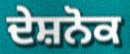
ਦੇਸ਼ਨੋਕ